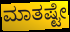
ಮಾತಷ್ಟೇ